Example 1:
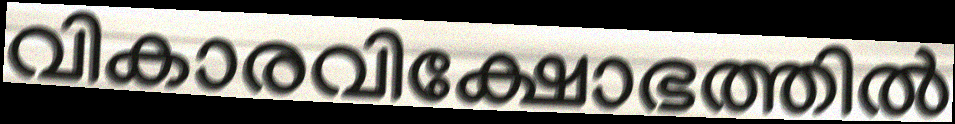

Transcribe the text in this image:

വികാരവിക്ഷോഭത്തിൽ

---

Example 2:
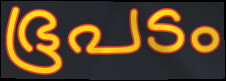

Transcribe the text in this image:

ഭൂപടം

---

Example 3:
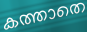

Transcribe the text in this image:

കത്താതെ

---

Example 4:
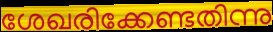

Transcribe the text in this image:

ശേഖരിക്കേണ്ടതിന്നു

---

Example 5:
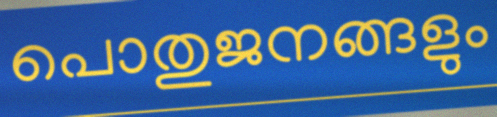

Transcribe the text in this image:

പൊതുജനങ്ങളും